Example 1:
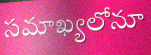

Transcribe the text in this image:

సమాఖ్యలోనూ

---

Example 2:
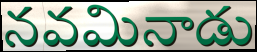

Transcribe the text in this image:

నవమినాడు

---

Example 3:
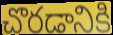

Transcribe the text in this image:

చొరడానికి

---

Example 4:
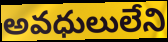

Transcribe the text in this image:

అవధులులేని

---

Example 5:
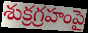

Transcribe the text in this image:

శుక్రగ్రహంపై